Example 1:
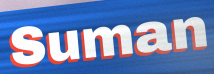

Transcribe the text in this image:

Suman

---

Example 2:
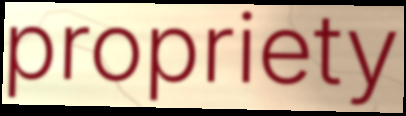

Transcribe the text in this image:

propriety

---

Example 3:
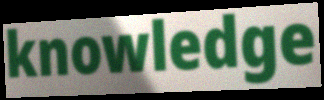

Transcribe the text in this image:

knowledge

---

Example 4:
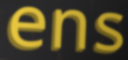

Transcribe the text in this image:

ens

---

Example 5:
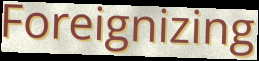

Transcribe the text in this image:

Foreignizing